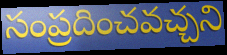
సంప్రదించవచ్చని